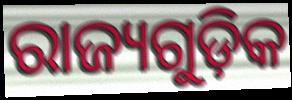
ରାଜ୍ୟଗୁଡ଼ିକ